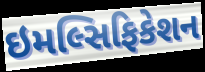
ઇમલ્સિફિકેશન